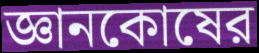
জ্ঞানকোষের